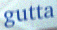
gutta